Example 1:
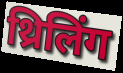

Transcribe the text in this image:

थ्रिलिंग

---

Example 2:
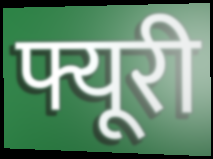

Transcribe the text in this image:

फ्यूरी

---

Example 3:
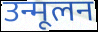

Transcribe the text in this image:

उन्‍मूलन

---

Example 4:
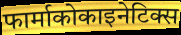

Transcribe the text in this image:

फार्माकोकाइनेटिक्स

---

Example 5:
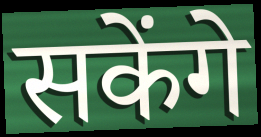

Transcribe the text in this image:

सकेंगे